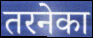
तरनेका